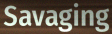
Savaging